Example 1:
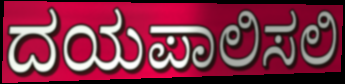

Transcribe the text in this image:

ದಯಪಾಲಿಸಲಿ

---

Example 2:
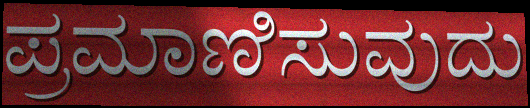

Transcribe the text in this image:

ಪ್ರಮಾಣಿಸುವುದು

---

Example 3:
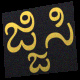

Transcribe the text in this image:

ಜ್ಜಿಸಿ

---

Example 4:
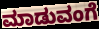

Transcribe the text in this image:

ಮಾಡುವಂಗೆ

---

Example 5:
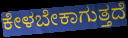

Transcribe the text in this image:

ಕೇಳಬೇಕಾಗುತ್ತದೆ